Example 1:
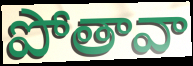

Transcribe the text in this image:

పోతావా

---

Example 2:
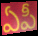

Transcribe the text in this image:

ఏపీ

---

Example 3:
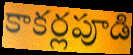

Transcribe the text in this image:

కాకర్లపూడి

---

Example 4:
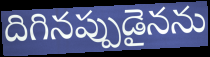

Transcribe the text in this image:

దిగినప్పుడైనను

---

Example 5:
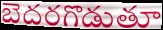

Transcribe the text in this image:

బెదరగొడుతూ